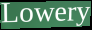
Lowery